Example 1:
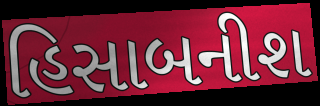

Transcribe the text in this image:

હિસાબનીશ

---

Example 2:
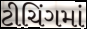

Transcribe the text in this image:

ટીચિંગમાં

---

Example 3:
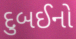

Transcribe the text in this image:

દુબઈનો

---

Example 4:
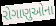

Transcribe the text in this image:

રોગાણુઓના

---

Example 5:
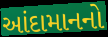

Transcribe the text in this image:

આંદામાનનો